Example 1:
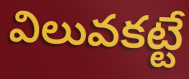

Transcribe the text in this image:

విలువకట్టే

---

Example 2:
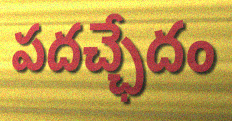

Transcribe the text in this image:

పదచ్ఛేదం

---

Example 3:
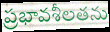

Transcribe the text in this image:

ప్రభావశీలతను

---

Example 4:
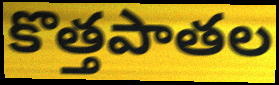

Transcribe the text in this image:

కొత్తపాతల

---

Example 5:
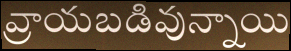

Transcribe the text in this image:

వ్రాయబడివున్నాయి